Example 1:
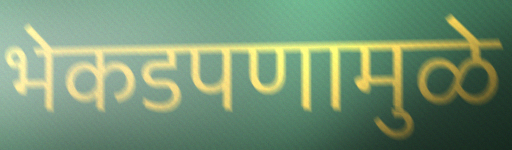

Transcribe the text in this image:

भेकडपणामुळे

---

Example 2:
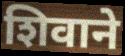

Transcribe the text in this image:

शिवाने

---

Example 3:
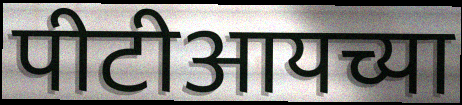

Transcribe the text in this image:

पीटीआयच्या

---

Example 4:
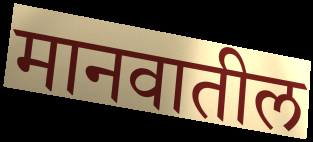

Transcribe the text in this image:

मानवातील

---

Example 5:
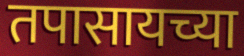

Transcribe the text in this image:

तपासायच्या